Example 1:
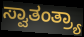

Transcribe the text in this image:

ಸ್ವಾತಂತ್ರ್ಯಾ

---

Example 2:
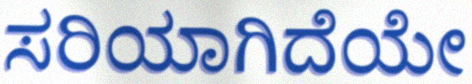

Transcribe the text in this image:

ಸರಿಯಾಗಿದೆಯೇ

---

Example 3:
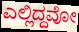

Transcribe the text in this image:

ಎಲ್ಲಿದ್ದವೋ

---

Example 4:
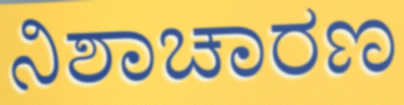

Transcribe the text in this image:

ನಿಶಾಚಾರಣ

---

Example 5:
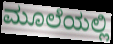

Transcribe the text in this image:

ಮೂಲೆಯಲ್ಲಿ